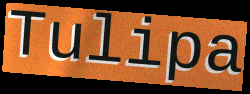
Tulipa